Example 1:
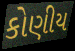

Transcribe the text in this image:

કોણીય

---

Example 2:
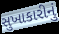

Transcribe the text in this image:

સુખાકારીનું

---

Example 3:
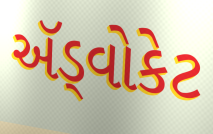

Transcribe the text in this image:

ઍડ્વોકેટ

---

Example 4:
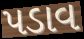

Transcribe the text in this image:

પડાવ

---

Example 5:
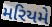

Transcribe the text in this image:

મરિયમે